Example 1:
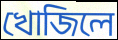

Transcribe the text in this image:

খোজিলে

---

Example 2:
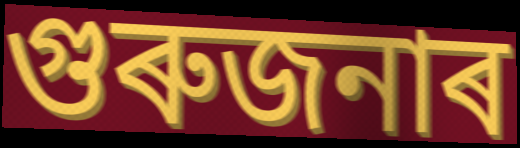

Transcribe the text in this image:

গুৰুজনাৰ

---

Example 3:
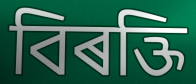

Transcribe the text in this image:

বিৰক্তি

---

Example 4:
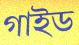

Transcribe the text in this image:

গাইড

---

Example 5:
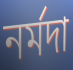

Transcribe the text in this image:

নৰ্মদা